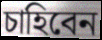
চাহিবেন